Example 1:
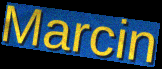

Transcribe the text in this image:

Marcin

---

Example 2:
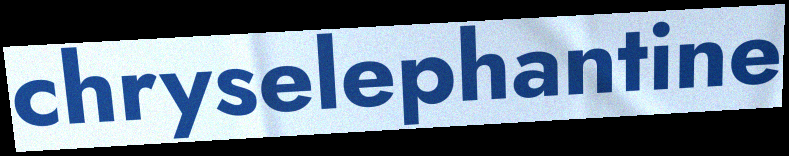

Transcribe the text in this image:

chryselephantine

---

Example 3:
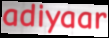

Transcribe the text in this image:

adiyaar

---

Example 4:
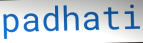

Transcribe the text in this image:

padhati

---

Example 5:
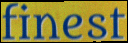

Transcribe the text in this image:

finest